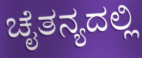
ಚೈತನ್ಯದಲ್ಲಿ